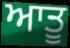
ਆਤੂ